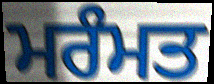
ਮਰੰਮਤ